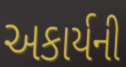
અકાર્યની